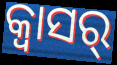
କ୍ୱାସର୍